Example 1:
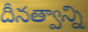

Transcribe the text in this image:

దీనత్వాన్ని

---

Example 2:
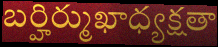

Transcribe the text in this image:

బర్హిర్ముఖాధ్యక్షతా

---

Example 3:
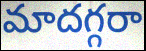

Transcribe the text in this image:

మాదగ్గరా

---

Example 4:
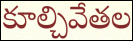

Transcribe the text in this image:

కూల్చివేతల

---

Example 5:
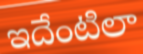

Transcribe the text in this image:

ఇదేంటిలా